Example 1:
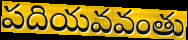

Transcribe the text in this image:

పదియవవంతు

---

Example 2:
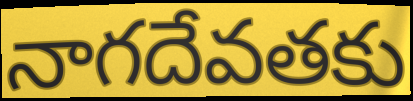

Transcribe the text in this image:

నాగదేవతకు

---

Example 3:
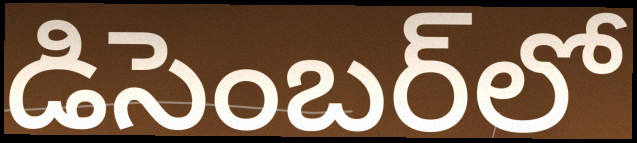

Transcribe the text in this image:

డిసెంబర్‌లో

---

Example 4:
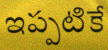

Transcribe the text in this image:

ఇప్పటికే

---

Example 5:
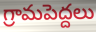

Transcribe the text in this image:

గ్రామపెద్దలు